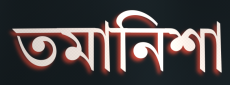
তমানিশা